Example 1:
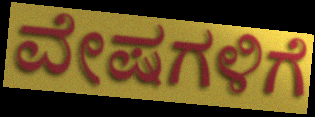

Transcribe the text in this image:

ವೇಷಗಳಿಗೆ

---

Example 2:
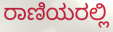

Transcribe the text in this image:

ರಾಣಿಯರಲ್ಲಿ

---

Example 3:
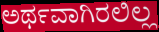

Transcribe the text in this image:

ಅರ್ಥವಾಗಿರಲಿಲ್ಲ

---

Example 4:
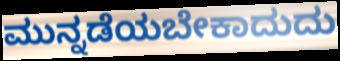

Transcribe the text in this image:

ಮುನ್ನಡೆಯಬೇಕಾದುದು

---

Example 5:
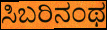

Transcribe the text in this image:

ಸಿಬರಿನಂಥ